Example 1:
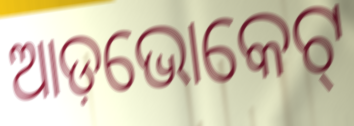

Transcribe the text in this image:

ଆଡ଼ଭୋକେଟ୍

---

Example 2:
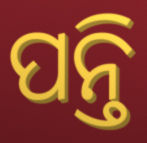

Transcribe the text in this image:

ପନ୍ତି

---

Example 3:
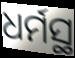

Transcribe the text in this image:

ଧର୍ମସ୍ଥ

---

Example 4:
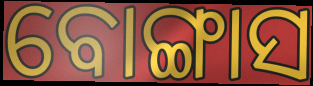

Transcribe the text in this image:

ବୋଙ୍ଗାସ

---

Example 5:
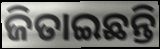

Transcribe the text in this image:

ଜିତାଇଛନ୍ତି